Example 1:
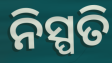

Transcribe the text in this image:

ନିସ୍ପତି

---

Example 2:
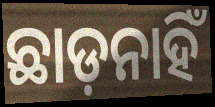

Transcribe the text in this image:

ଛାଡ଼ନାହିଁ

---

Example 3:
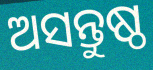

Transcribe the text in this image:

ଅସନ୍ତୁଷ୍ଠ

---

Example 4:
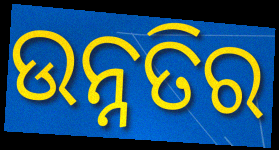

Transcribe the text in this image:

ଉନ୍ନତିର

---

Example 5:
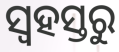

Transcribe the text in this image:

ସ୍ୱହସ୍ତରୁ